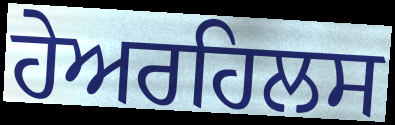
ਹੇਅਰਹਿਲਸ